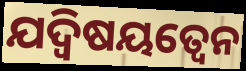
ଯଦ୍ଵିଷୟତ୍ଵେନ